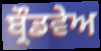
ਬ੍ਰੌਡਵੇਅ